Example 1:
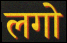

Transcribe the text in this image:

लगो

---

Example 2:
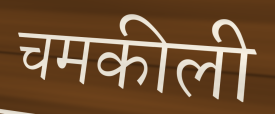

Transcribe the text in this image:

चमकीली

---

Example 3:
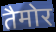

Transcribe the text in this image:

तैमोर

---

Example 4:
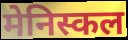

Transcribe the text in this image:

मेनिस्कल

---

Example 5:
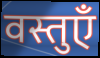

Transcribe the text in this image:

वस्‍तुएँ